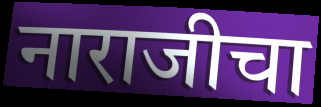
नाराजीचा